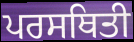
ਪਰਸਥਿਤੀ